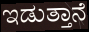
ಇಡುತ್ತಾನೆ